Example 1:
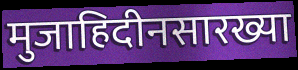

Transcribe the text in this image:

मुजाहिदीनसारख्या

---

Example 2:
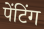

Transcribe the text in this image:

पेंटिंग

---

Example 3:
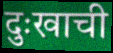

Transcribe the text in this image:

दुःखाची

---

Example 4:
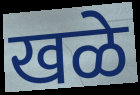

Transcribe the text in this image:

खळे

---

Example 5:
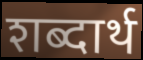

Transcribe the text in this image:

शब्दार्थ